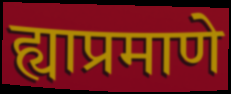
ह्याप्रमाणे